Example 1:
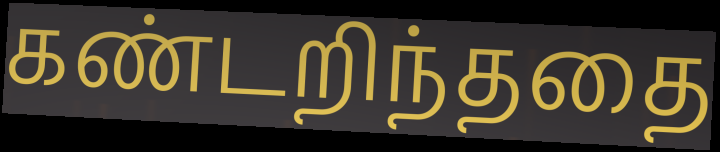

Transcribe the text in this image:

கண்டறிந்ததை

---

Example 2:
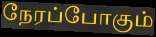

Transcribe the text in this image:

நேரப்போகும்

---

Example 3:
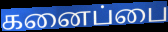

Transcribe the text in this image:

கனைப்பை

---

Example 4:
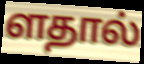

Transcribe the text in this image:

ளதால்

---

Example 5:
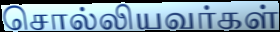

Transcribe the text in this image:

சொல்லியவர்கள்